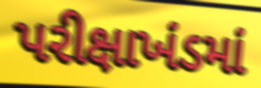
પરીક્ષાખંડમાં